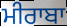
ਮੀਰਾਬਾ